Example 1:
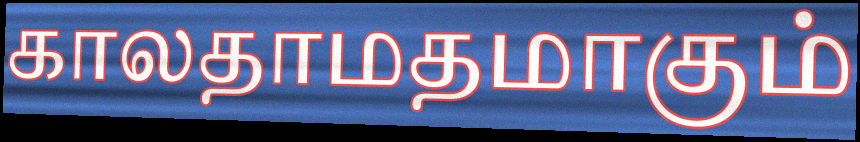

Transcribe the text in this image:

காலதாமதமாகும்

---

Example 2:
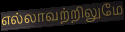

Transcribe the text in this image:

எல்லாவற்றிலுமே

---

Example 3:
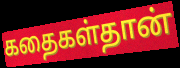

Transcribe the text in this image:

கதைகள்தான்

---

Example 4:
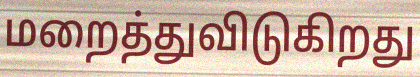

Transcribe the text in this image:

மறைத்துவிடுகிறது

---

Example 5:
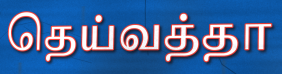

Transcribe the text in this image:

தெய்வத்தா